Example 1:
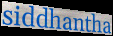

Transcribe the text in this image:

siddhantha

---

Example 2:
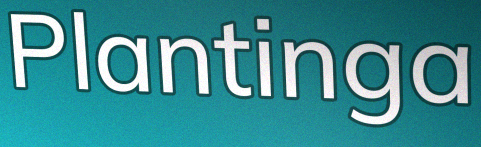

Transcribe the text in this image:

Plantinga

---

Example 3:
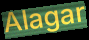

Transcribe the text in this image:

Alagar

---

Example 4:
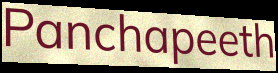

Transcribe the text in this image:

Panchapeeth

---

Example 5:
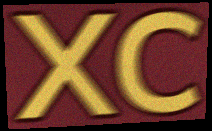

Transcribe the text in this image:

XC